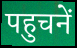
पहुचनें